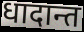
धादान्त